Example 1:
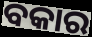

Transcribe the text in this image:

ବକାର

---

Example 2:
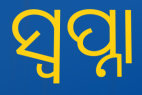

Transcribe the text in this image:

ସ୍ୱପ୍ନା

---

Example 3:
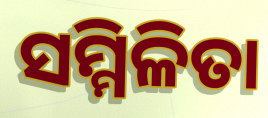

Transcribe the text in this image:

ସମ୍ମିଳିତା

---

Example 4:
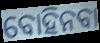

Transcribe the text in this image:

ବୋହିନବା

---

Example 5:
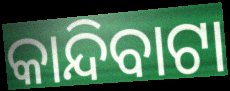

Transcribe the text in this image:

କାନ୍ଦିବାଟା